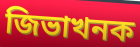
জিভাখনক